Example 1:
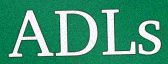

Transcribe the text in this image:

ADLs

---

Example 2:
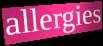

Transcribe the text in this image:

allergies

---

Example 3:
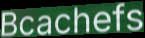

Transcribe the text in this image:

Bcachefs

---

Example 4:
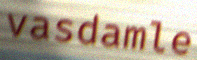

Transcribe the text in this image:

vasdamle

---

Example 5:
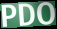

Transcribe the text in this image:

PDO